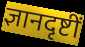
ज्ञानदृष्टीं